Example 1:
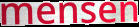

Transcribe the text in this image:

mensen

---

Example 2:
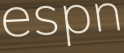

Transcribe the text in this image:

espn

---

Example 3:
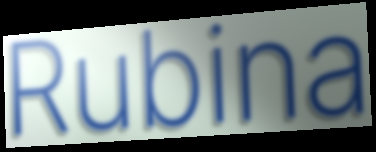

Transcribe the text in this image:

Rubina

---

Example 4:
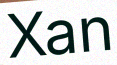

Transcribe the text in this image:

Xan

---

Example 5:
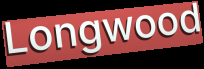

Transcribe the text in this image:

Longwood